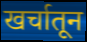
खर्चातून